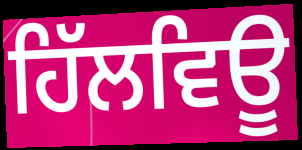
ਹਿੱਲਵਿਊ